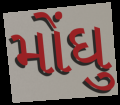
મોંઘુ